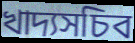
খাদ্যসচিব